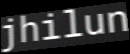
jhilun